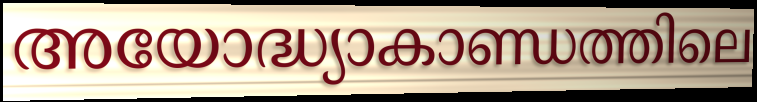
അയോദ്ധ്യാകാണ്ഡത്തിലെ